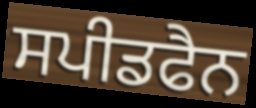
ਸਪੀਡਫੈਨ